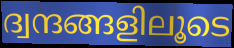
ദ്വന്ദങ്ങളിലൂടെ